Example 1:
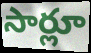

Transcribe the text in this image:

సార్లూ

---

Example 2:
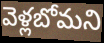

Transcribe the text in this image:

వెళ్లబోమని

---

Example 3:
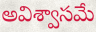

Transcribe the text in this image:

అవిశ్వాసమే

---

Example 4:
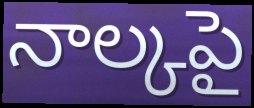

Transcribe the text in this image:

నాల్కపై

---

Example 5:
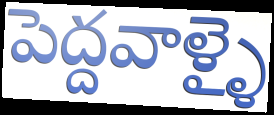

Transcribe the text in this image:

పెద్దవాళ్ళై